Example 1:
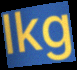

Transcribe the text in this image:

lkg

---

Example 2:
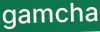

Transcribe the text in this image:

gamcha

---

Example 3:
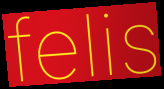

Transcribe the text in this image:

felis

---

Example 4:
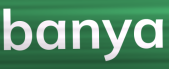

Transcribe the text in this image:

banya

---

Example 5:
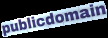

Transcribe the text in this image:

publicdomain